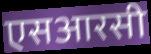
एसआरसी